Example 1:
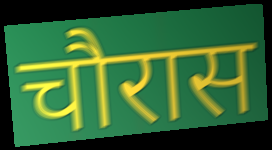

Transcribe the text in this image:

चौरास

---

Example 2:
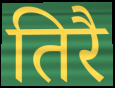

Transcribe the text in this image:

तिरै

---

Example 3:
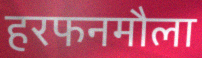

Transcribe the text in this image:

हरफनमौला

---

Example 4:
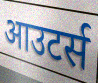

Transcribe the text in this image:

आउटर्स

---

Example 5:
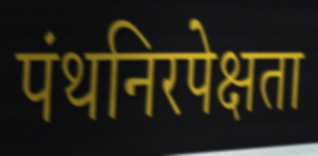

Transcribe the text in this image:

पंथनिरपेक्षता